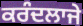
ਕਰੰਦਲਾਜੇ